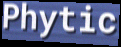
Phytic